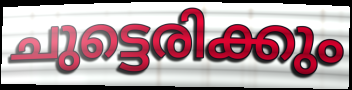
ചുട്ടെരിക്കും